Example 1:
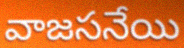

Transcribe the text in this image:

వాజసనేయి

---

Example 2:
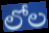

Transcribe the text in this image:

లోల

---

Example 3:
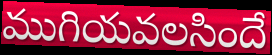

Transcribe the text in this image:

ముగియవలసిందే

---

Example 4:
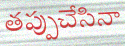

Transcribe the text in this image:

తప్పుచేసినా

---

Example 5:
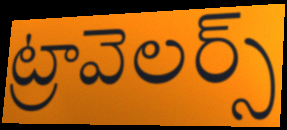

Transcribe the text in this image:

ట్రావెలర్స్